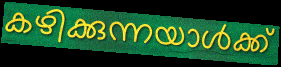
കഴിക്കുന്നയാൾക്ക്